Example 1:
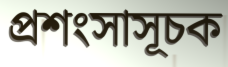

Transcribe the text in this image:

প্ৰশংসাসূচক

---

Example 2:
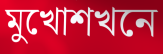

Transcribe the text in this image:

মুখোশখনে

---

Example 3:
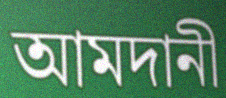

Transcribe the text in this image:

আমদানী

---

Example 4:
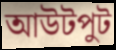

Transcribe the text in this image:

আউটপুট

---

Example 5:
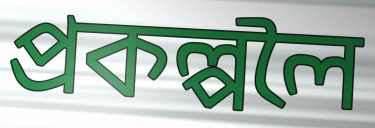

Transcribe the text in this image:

প্ৰকল্পলৈ